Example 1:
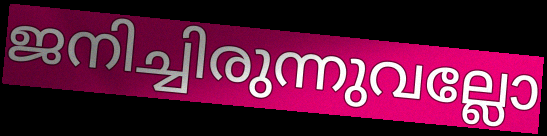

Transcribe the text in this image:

ജനിച്ചിരുന്നുവല്ലോ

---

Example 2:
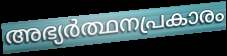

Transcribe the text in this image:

അഭ്യർത്ഥനപ്രകാരം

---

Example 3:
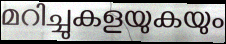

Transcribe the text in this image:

മറിച്ചുകളയുകയും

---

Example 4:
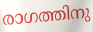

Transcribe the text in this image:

രാഗത്തിനു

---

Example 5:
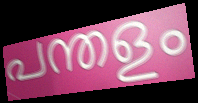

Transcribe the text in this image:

പന്തളം